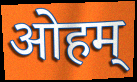
ओहम्